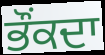
ਭੌਂਕਦਾ